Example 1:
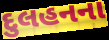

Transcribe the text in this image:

દુલહનના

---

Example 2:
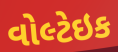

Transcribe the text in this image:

વોલ્ટેઇક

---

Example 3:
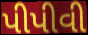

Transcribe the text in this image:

પીપીવી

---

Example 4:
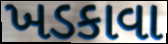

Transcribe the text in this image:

ખડકાવા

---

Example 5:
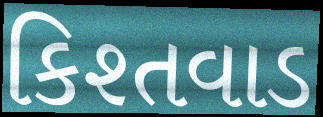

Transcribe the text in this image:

કિશ્તવાડ